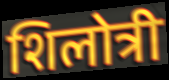
शिलोत्री